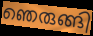
ഞെരുങ്ങി